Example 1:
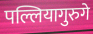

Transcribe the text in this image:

पल्लियागुरुगे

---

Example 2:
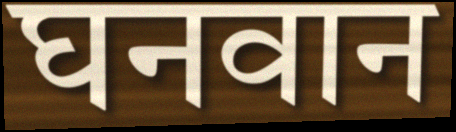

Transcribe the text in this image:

घनवान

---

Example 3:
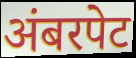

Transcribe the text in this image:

अंबरपेट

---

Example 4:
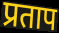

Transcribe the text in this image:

प्रताप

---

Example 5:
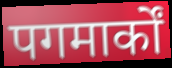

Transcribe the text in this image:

पगमार्कों